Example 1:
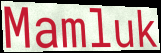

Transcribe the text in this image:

Mamluk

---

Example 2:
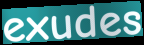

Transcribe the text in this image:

exudes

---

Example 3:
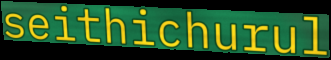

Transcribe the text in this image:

seithichurul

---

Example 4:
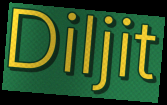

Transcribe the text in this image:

Diljit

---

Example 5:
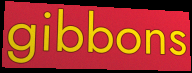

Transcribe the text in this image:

gibbons